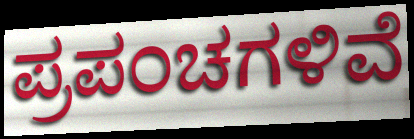
ಪ್ರಪಂಚಗಳಿವೆ